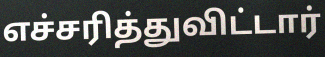
எச்சரித்துவிட்டார்